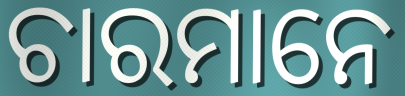
ଚାରମାନେ